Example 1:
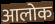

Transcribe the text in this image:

आलोक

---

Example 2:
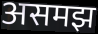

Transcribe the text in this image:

असमझ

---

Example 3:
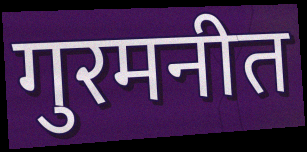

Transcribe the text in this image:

गुरमनीत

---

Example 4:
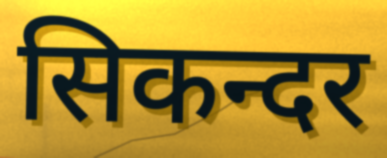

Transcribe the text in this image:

सिकन्दर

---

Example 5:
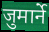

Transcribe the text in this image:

जुमार्ने